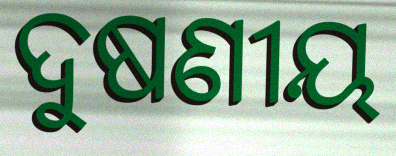
ଦୁଷଣୀୟ